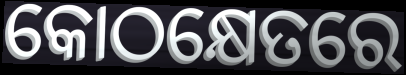
କୋଠକ୍ଷେତରେ